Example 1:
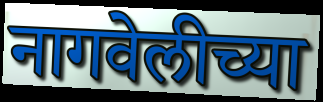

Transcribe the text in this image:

नागवेलीच्या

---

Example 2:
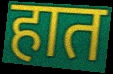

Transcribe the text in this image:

हात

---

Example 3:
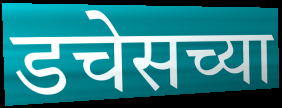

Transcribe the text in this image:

डचेसच्या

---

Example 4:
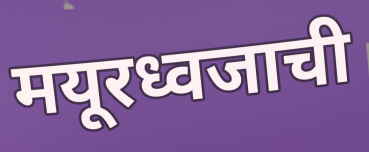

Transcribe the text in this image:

मयूरध्वजाची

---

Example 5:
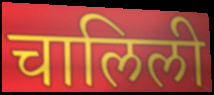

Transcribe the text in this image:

चालिली